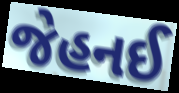
જેહનઈ